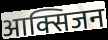
आक्सिजन